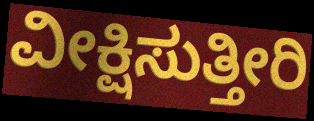
ವೀಕ್ಷಿಸುತ್ತೀರಿ